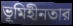
ভূমিহীনতার